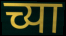
च्या